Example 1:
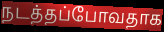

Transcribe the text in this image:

நடத்தப்போவதாக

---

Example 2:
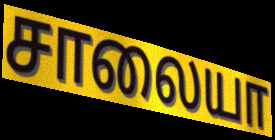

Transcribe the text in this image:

சாலையா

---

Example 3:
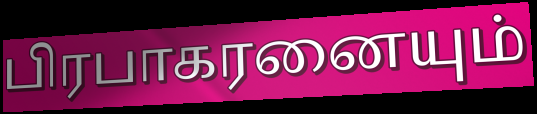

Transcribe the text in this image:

பிரபாகரனையும்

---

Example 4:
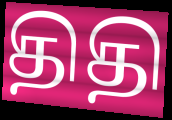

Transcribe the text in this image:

திதி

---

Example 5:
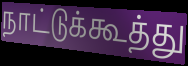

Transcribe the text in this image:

நாட்டுக்கூத்து